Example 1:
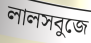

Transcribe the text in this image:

লালসবুজে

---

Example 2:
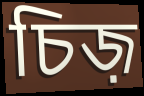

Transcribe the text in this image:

চিজ়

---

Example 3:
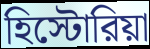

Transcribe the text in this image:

হিস্টোরিয়া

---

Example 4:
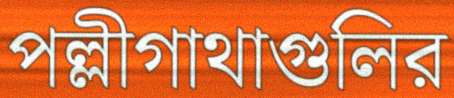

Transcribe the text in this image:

পল্লীগাথাগুলির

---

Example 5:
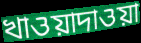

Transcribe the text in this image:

খাওয়াদাওয়া